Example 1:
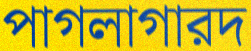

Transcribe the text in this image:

পাগলাগারদ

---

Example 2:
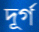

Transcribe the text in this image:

দূর্গ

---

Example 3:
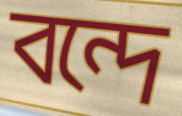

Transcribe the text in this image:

বন্দে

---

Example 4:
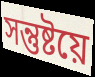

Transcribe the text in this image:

সন্তুষ্টয়ে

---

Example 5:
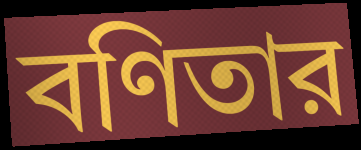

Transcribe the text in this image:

বণিতার